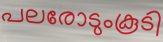
പലരോടുംകൂടി